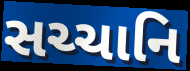
સચ્ચાનિ